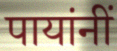
पायांनीं